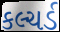
કલ્ચર્ડ